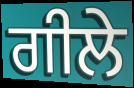
ਗੀਲੇ